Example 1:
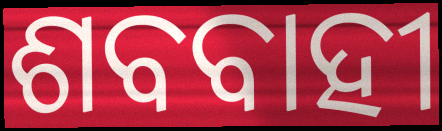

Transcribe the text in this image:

ଶବବାହୀ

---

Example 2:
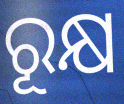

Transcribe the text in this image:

ରୂକ୍ଷ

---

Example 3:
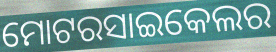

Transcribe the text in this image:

ମୋଟରସାଇକେଲର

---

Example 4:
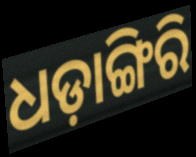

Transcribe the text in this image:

ଧଡ଼ାଙ୍ଗିରି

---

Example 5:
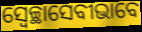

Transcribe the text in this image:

ସ୍ୱେଚ୍ଛାସେବୀଭାବେ